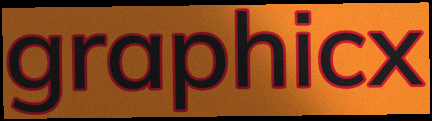
graphicx